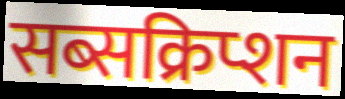
सब्सक्रिप्शन